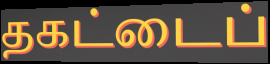
தகட்டைப்